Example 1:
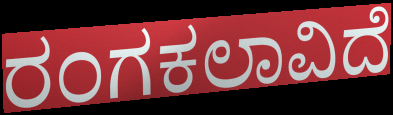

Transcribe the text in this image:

ರಂಗಕಲಾವಿದೆ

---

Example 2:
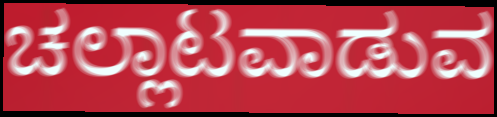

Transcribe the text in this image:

ಚಲ್ಲಾಟವಾಡುವ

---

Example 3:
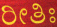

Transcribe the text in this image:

ರೀತಿಃ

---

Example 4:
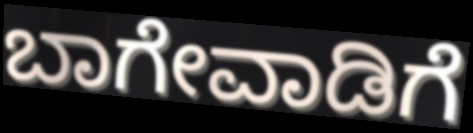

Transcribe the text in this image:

ಬಾಗೇವಾಡಿಗೆ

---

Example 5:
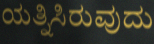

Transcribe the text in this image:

ಯತ್ನಿಸಿರುವುದು